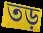
তড়